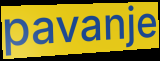
pavanje